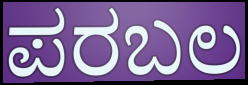
ಪರಬಲ